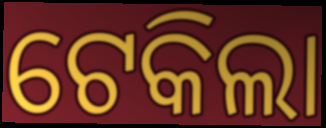
ଟେକିଲା